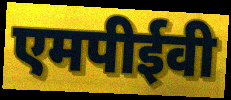
एमपीईवी